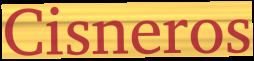
Cisneros